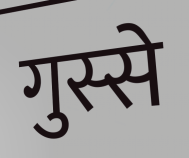
गुस्‍से